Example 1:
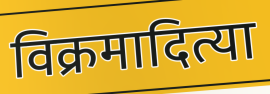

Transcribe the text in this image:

विक्रमादित्या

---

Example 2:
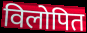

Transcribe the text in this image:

विलोपित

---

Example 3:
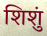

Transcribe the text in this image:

शिशुं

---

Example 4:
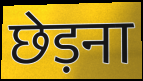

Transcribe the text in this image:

छेड़ना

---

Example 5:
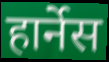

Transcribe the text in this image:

हार्नेस